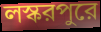
লস্করপুরে